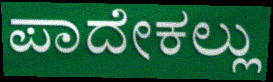
ಪಾದೇಕಲ್ಲು